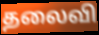
தலைவி